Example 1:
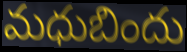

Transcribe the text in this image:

మధుబిందు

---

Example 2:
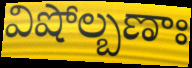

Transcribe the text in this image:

విషోల్బణాః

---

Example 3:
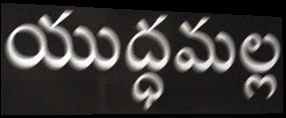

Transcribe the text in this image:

యుద్ధమల్ల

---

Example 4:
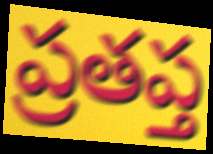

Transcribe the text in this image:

ప్రతప్త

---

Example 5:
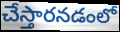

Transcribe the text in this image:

చేస్తారనడంలో